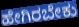
ಹೇಗಿರಬೇಕು